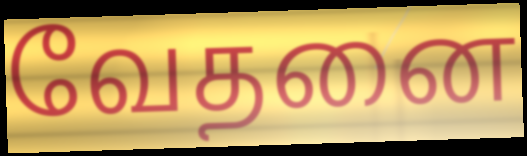
வேதனை